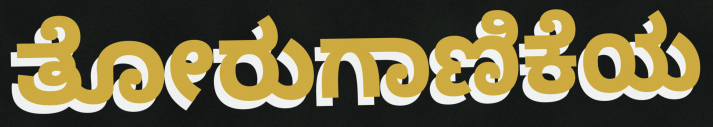
ತೋರುಗಾಣಿಕೆಯ